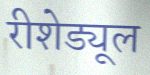
रीशेड्यूल